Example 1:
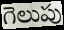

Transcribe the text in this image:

గెలుపు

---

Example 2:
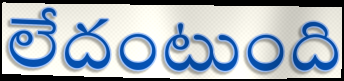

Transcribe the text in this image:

లేదంటుంది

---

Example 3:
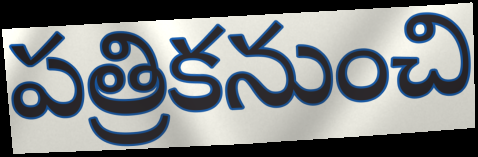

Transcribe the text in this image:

పత్రికనుంచి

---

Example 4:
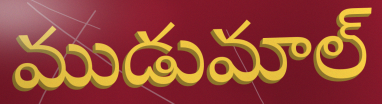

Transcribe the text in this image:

ముడుమాల్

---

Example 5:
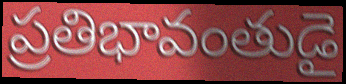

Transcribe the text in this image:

ప్రతిభావంతుడై